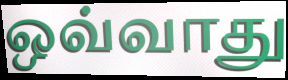
ஒவ்வாது